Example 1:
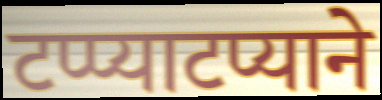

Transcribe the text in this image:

टप्प्याटप्याने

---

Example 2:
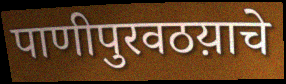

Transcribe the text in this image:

पाणीपुरवठय़ाचे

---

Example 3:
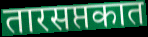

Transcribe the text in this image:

तारसप्तकात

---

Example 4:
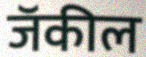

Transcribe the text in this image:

जॅकील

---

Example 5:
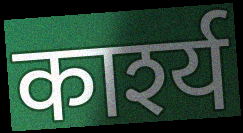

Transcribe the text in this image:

कार्श्य